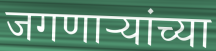
जगणाऱ्यांच्या